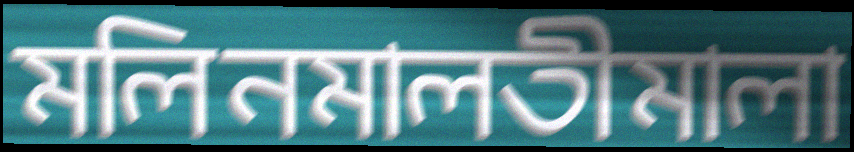
মলিনমালতীমালা